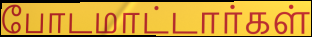
போடமாட்டார்கள்